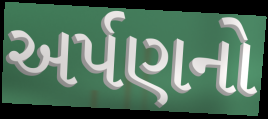
અર્પણનો